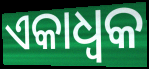
ଏକାଧ୍ଵକ